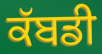
ਕੱਬਡੀ